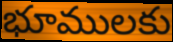
భూములకు